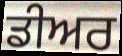
ਡੀਅਰ